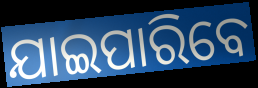
ଯାଇପାରିବେ